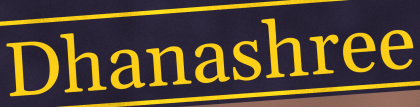
Dhanashree